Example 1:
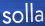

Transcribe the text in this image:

solla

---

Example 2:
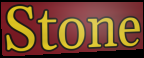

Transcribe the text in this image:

Stone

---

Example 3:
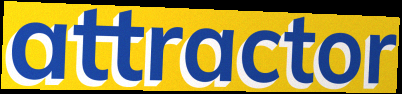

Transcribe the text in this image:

attractor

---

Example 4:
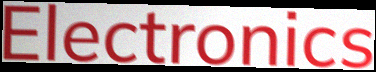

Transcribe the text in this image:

Electronics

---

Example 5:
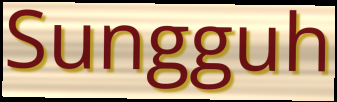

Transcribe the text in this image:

Sungguh